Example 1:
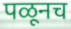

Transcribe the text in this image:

पळूनच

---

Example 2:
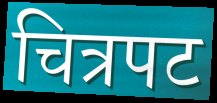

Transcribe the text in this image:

चित्रपट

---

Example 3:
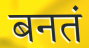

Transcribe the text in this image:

बनतं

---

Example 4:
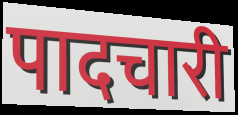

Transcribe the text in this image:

पादचारी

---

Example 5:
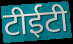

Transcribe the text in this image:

टीईटी